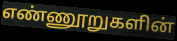
எண்ணூறுகளின்